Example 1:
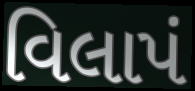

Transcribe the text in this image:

વિલાપં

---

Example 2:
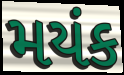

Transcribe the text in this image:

મયંક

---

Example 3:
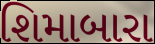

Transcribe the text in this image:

શિમાબારા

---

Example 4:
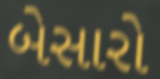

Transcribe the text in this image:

બેસારો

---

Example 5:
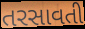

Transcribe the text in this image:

તરસાવતી